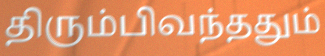
திரும்பிவந்ததும்